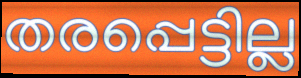
തരപ്പെട്ടില്ല